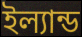
ইল্যান্ড